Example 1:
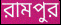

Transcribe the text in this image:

রামপুর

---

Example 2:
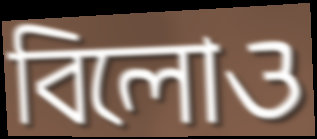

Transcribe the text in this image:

বিলোও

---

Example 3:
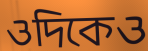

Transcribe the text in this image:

ওদিকেও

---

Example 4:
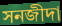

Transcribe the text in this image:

সনজীদা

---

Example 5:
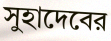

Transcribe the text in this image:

সুহাদেবের